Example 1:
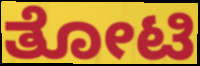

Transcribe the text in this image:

ತೋಟಿ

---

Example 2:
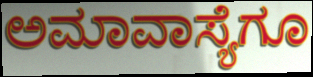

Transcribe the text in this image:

ಅಮಾವಾಸ್ಯೆಗೂ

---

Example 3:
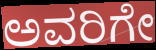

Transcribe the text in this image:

ಅವರಿಗೇ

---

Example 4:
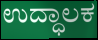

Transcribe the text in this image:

ಉದ್ಧಾಲಕ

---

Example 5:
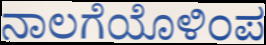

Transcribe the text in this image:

ನಾಲಗೆಯೊಳಿಂಪ